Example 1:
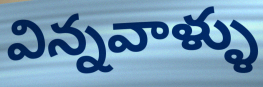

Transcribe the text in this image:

విన్నవాళ్ళు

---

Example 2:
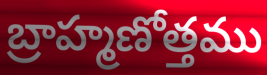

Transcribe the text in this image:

బ్రాహ్మణోత్తము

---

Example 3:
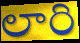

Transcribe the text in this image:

లారి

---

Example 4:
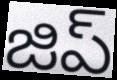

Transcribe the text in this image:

జిప్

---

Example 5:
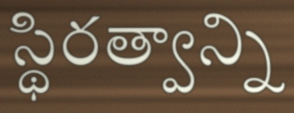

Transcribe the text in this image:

స్థిరత్వాన్ని